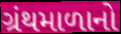
ગ્રંથમાળાનો